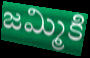
జమ్మికి